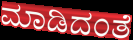
ಮಾಡಿದಂತೆ